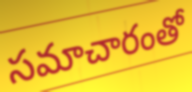
సమాచారంతో